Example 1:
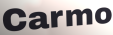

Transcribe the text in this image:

Carmo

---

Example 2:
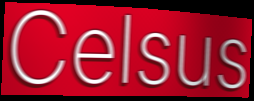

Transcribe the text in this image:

Celsus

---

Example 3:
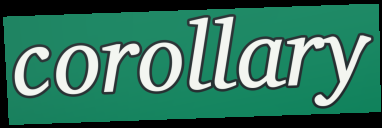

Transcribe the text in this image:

corollary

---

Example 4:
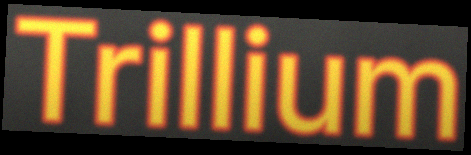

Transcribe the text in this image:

Trillium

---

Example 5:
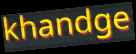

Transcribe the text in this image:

khandge